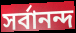
সৰ্বানন্দ